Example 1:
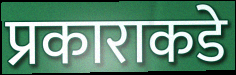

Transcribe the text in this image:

प्रकाराकडे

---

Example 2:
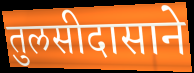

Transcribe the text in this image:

तुलसीदासाने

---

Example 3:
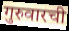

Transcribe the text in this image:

गुरुवारची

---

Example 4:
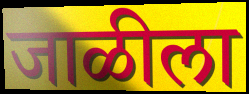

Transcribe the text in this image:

जाळीला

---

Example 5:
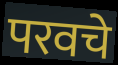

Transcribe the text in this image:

परवचे